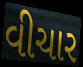
વીચાર